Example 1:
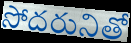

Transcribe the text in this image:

సోదరునితో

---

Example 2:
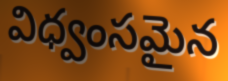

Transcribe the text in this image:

విధ్వంసమైన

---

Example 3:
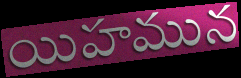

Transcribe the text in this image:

యిహమున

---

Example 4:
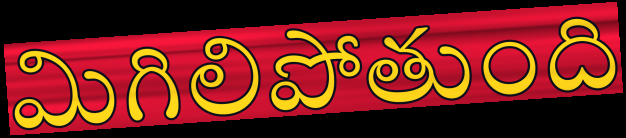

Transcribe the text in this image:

మిగిలిపోతుంది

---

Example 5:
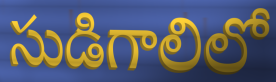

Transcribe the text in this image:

సుడిగాలిలో